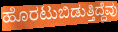
ಹೊರಟುಬಿಡುತ್ತಿದ್ದೆವು